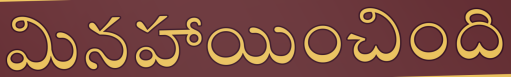
మినహాయించింది